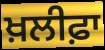
ਖ਼ਲੀਫ਼ਾ